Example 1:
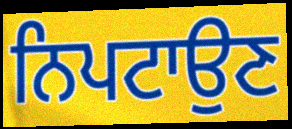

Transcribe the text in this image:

ਨਿਪਟਾਉਣ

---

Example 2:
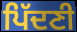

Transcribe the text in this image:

ਪਿੱਦਣੀ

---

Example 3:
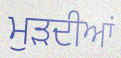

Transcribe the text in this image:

ਮੁੜਦੀਆਂ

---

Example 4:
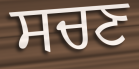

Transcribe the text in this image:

ਸਚਣ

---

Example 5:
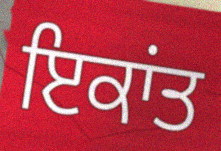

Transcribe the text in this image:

ਇਕਾਂਤ